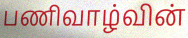
பணிவாழ்வின்